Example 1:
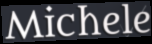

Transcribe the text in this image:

Michele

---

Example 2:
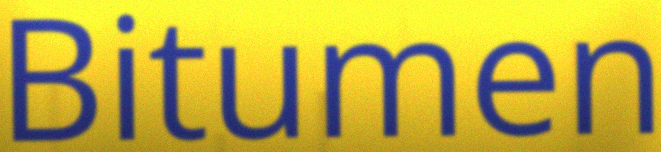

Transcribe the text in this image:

Bitumen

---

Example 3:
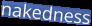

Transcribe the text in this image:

nakedness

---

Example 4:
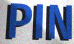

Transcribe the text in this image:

PIN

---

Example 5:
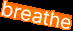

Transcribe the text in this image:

breathe